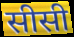
सीसी